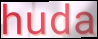
huda